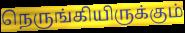
நெருங்கியிருக்கும்